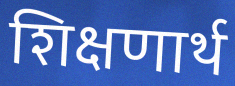
शिक्षणार्थ